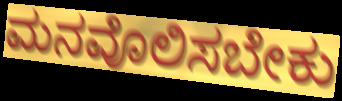
ಮನವೊಲಿಸಬೇಕು